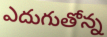
ఎదుగుతోన్న